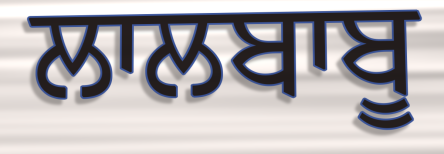
ਲਾਲਬਾਬੂ